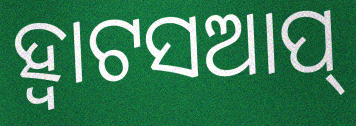
ହ୍ବାଟସଆପ୍